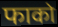
फाको